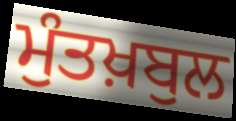
ਮੁੰਤਖ਼ਬੁਲ